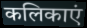
कलिकाएं